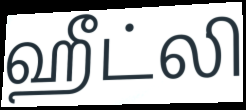
ஹீட்லி